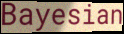
Bayesian